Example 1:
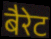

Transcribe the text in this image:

बैरेट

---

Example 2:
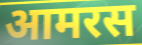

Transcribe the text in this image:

आमरस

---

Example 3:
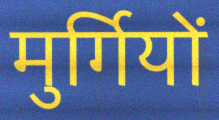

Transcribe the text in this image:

मुर्गियों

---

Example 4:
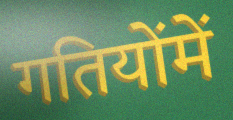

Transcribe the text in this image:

गतियोंमें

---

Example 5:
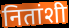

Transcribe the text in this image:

नितांशी